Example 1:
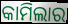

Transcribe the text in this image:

କାମିଲାର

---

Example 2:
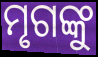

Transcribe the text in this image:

ମୃଗଙ୍କୁ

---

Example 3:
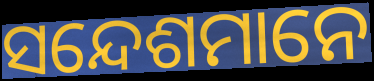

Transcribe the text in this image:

ସନ୍ଦେଶମାନେ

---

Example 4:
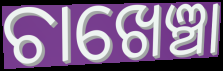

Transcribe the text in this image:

ଚାଖେଞ୍ଚା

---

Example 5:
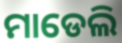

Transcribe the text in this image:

ମାଡେଲି